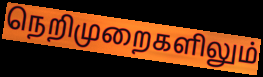
நெறிமுறைகளிலும்